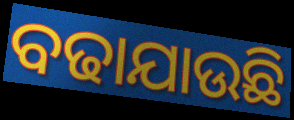
ବଢାଯାଉଛି